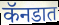
कॅनडात